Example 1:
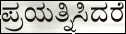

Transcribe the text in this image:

ಪ್ರಯತ್ನಿಸಿದರೆ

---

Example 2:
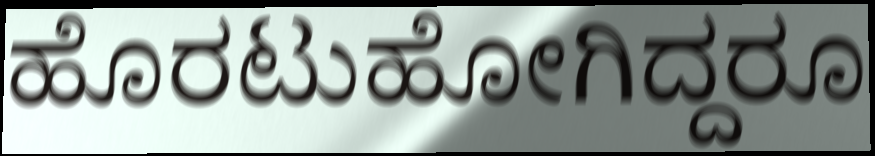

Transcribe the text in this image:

ಹೊರಟುಹೋಗಿದ್ದರೂ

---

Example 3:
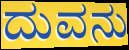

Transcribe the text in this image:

ದುವನು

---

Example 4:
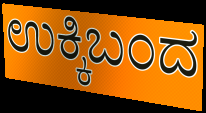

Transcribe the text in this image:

ಉಕ್ಕಿಬಂದ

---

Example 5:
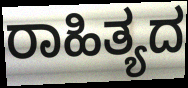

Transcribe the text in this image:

ರಾಹಿತ್ಯದ